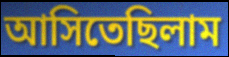
আসিতেছিলাম